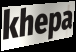
khepa